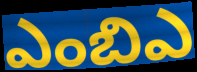
ఎంబిఎ